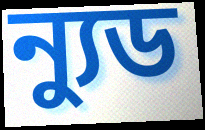
ন্যুড